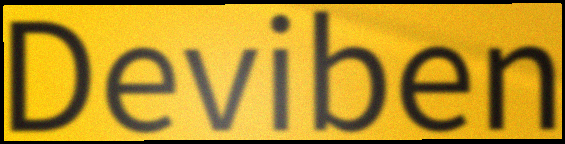
Deviben